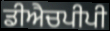
ਡੀਐਚਪੀਪੀ